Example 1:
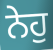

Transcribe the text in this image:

ਨੇਹੁ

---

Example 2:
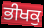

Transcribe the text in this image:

ਭੀਖਕੁ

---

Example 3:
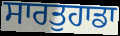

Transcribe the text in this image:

ਸਾਰਤੁਹਾਡਾ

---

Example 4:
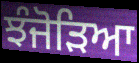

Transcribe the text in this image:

ਝੰਜੋੜਿਆ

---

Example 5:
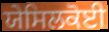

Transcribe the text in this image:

ਯੇਸਿਲਕੋਈ